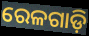
ରେଳଗାଡ଼ି